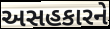
અસહકારને